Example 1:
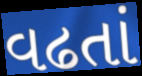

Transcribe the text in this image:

વઢતાં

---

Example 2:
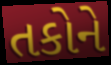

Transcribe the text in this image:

તકોને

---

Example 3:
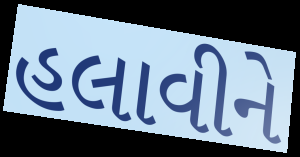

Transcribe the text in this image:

હલાવીને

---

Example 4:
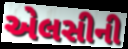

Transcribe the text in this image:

એલસીની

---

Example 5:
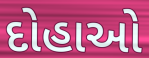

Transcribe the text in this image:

દોહાઓ